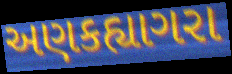
અણકહ્યાગરા